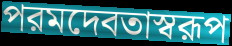
পরমদেবতাস্বরূপ